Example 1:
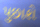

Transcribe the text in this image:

પુછાશે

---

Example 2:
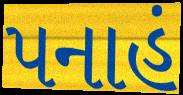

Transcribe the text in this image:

પનાહં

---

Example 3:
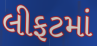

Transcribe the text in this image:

લીફટમાં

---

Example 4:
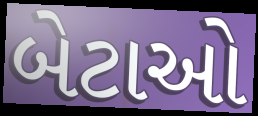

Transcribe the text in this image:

બેટાઓ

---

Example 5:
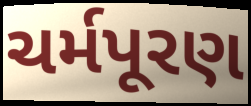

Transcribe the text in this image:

ચર્મપૂરણ